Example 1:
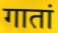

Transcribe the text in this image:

गातां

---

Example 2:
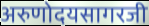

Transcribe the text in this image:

अरुणोदयसागरजी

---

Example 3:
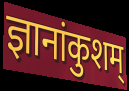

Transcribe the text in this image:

ज्ञानांकुशम्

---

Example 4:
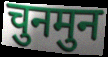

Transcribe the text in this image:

चुनमुन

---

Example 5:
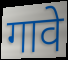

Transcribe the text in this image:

गावे